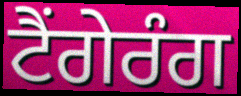
ਟੈਂਗੇਰੰਗ